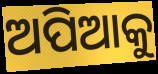
ଅପିଆକୁ